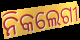
ନିକଲେଗୀ